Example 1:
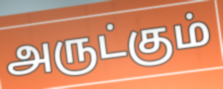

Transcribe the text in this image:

அருட்கும்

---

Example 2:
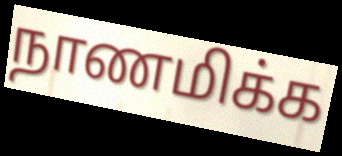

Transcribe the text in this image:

நாணமிக்க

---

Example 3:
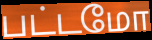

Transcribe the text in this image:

பட்டமோ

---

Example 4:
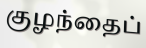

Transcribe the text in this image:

குழந்தைப்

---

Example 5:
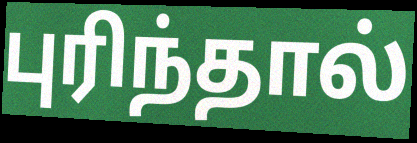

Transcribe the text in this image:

புரிந்தால்